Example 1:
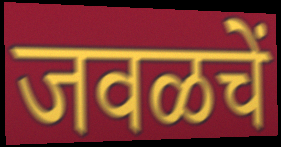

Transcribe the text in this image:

जवळचें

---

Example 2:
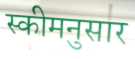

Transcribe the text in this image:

स्कीमनुसार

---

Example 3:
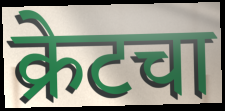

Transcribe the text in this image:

क्रेटचा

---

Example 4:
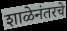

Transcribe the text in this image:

शाळेनंतरचे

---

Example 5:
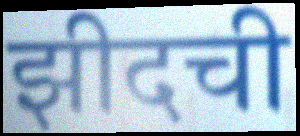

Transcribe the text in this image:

झीदची